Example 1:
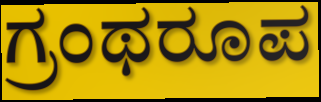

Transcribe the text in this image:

ಗ್ರಂಥರೂಪ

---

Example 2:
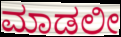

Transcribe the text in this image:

ಮಾಡಲೀ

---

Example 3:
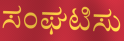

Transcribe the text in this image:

ಸಂಘಟಿಸು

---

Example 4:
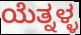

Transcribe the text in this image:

ಯೆತ್ನಳ್ಳ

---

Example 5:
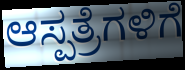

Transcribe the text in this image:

ಆಸ್ಪತ್ರೆಗಳಿಗೆ